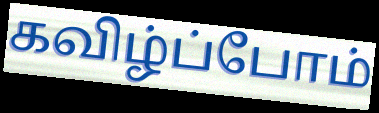
கவிழ்ப்போம்